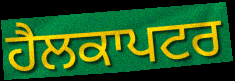
ਹੈਲਕਾਪਟਰ